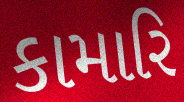
કામારિ